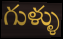
గుళ్ళు